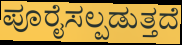
ಪೂರೈಸಲ್ಪಡುತ್ತದೆ